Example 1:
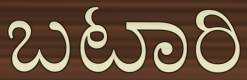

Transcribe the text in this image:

ಬಟಾರಿ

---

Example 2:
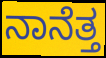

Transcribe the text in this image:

ನಾನೆತ್ತ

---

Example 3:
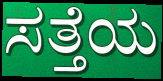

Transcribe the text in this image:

ಸತ್ತೆಯ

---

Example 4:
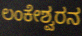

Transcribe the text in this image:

ಲಂಕೇಶ್ವರನ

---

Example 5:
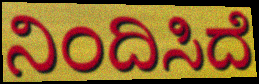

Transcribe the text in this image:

ನಿಂದಿಸಿದೆ